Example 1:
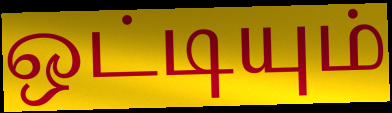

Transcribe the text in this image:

ஒட்டியும்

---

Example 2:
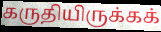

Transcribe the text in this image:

கருதியிருக்கக்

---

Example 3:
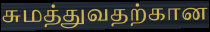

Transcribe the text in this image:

சுமத்துவதற்கான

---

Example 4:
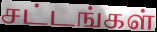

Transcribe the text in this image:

சட்டங்கள்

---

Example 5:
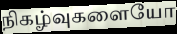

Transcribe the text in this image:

நிகழ்வுகளையோ